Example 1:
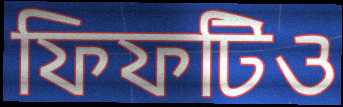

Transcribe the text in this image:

ফিফটিও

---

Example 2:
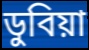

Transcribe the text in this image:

ডুবিয়া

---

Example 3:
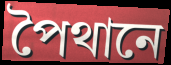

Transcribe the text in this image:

পৈথানে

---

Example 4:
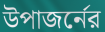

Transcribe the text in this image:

উপাজর্নের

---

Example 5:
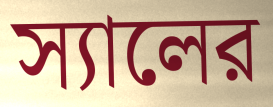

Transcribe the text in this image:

স্যালের